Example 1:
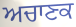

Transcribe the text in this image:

ਅਚਾਣਕ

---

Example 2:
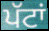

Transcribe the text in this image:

ਪੱਟਾਂ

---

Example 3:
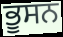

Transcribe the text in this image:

ਭੂਸਨ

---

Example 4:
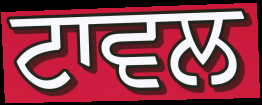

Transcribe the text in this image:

ਟਾਵਲ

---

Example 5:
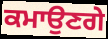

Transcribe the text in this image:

ਕਮਾਉਣਗੇ